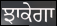
ਝਾਕੇਗਾ